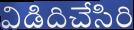
విడిదిచేసిరి